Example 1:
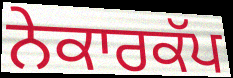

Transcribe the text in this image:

ਨੇਕਾਰਕੱਪ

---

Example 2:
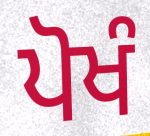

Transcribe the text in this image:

ਪੋਖੰ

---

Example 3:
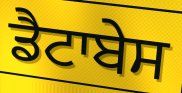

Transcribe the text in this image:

ਡੈਟਾਬੇਸ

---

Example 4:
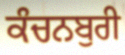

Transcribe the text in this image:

ਕੰਚਨਬੁਰੀ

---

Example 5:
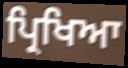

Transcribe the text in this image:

ਪ੍ਰਿਖਿਆ